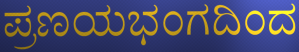
ಪ್ರಣಯಭಂಗದಿಂದ